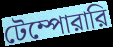
টেম্পোরারি